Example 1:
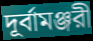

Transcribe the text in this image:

দূর্বামঞ্জরী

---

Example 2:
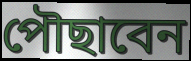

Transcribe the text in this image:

পৌছাবেন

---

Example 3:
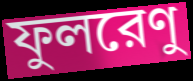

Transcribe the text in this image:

ফুলরেণু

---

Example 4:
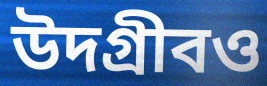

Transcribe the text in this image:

উদগ্রীবও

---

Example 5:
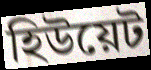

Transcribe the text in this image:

হিউয়েট